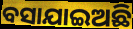
ବସାଯାଇଅଛି